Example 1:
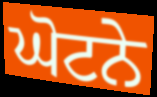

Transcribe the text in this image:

ਘੋਟਨੇ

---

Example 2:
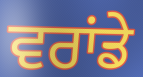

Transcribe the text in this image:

ਵਰਾਂਡੇ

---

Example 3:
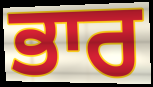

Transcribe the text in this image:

ਭਾਰ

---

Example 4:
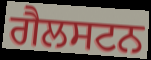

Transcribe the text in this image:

ਗੈਲਸਟਨ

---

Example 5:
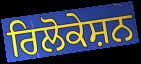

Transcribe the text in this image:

ਰਿਲੋਕੇਸ਼ਨ